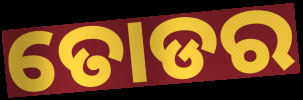
ତୋଡର